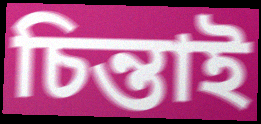
চিন্তাই